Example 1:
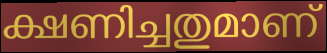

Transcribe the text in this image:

ക്ഷണിച്ചതുമാണ്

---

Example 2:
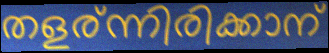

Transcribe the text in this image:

തളര്ന്നിരിക്കാന്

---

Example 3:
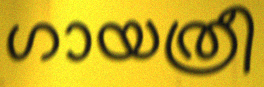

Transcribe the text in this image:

ഗായത്രീ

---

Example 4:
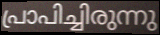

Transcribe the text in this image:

പ്രാപിച്ചിരുന്നു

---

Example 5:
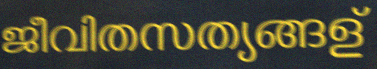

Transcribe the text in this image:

ജീവിതസത്യങ്ങള്